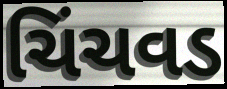
ચિંચવડ